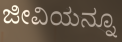
ಜೀವಿಯನ್ನೂ